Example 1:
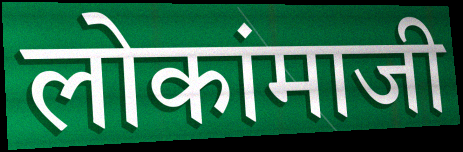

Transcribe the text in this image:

लोकांमाजी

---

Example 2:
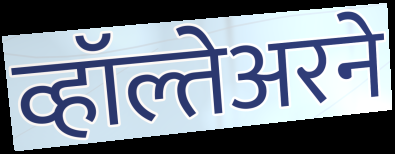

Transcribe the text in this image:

व्हॉल्तेअरने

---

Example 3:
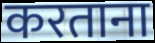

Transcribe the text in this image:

करताना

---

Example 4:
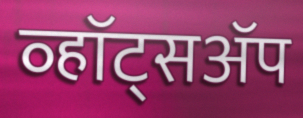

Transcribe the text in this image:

व्हॉट्सॲप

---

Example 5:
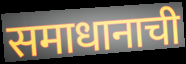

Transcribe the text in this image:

समाधानाची